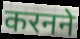
करनने